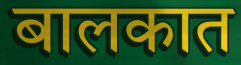
बालकात